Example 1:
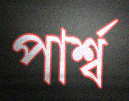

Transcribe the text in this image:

পার্শ্ব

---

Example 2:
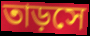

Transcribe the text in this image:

তাড়সে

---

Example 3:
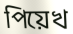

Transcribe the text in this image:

পিয়েখ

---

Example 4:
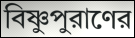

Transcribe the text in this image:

বিষ্ণুপুরাণের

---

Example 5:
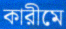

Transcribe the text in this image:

কারীমে